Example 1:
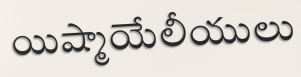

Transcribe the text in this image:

యిష్మాయేలీయులు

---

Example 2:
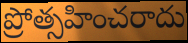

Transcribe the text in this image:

ప్రోత్సహించరాదు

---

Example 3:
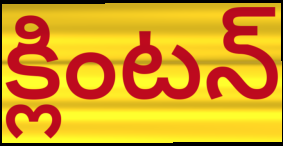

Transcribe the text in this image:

క్లింటన్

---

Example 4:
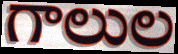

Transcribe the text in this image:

గాలుల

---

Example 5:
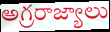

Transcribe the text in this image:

అగ్రరాజ్యాలు